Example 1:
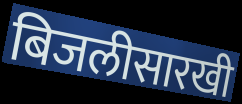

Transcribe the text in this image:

बिजलीसारखी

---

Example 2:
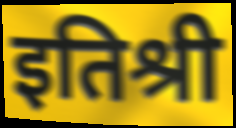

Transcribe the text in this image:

इतिश्री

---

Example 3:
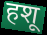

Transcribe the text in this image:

हशू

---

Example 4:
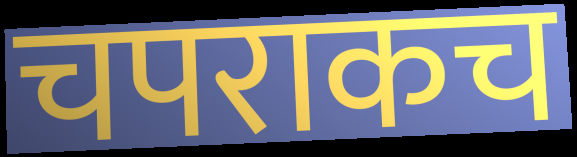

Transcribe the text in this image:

चपराकच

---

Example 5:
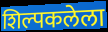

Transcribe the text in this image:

शिल्पकलेला